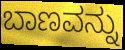
ಬಾಣವನ್ನು